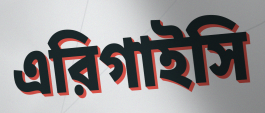
এরিগাইসি